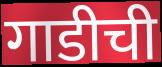
गाडीची